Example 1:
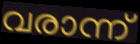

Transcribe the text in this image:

വരാന്ന്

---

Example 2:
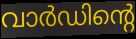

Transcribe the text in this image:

വാർഡിന്റെ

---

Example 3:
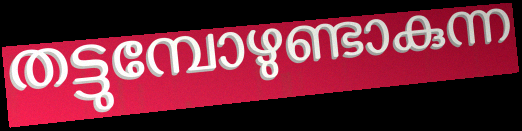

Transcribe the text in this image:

തട്ടുമ്പോഴുണ്ടാകുന്ന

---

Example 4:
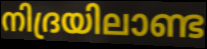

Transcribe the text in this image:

നിദ്രയിലാണ്ട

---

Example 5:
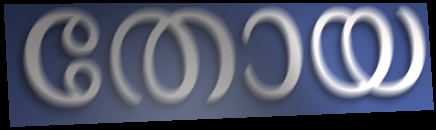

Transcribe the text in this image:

തോയ